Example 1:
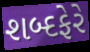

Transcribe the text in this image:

શબ્દફેરે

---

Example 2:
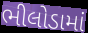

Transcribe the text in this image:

ભીલોડામાં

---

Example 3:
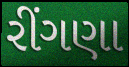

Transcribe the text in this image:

રીંગણા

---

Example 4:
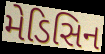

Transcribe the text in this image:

મેડિસિન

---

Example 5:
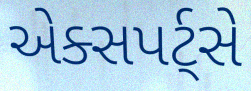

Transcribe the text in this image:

એક્સપર્ટ્સે